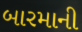
બારમાની